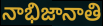
నాభిజానాతి